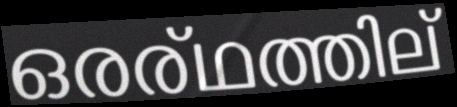
ഒരര്ഥത്തില്